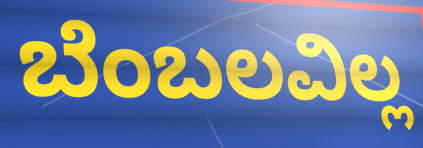
ಬೆಂಬಲವಿಲ್ಲ